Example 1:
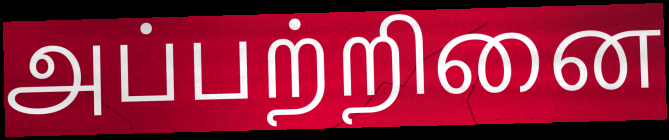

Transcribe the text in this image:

அப்பற்றினை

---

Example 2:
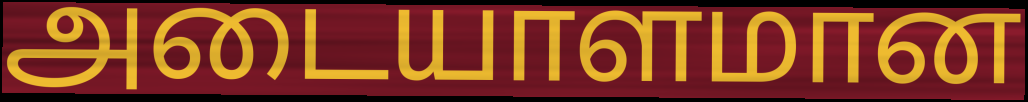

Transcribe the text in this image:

அடையாளமான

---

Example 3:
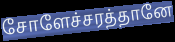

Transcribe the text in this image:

சோளேச்சரத்தானே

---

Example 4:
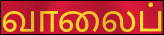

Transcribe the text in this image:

வாலைப்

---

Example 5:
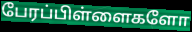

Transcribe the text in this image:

பேரப்பிள்ளைகளோ